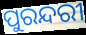
ପୁରନ୍ଦରୀ